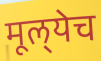
मूल्येच